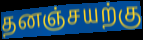
தனஞ்சயற்கு